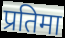
प्रतिमा